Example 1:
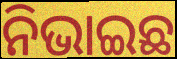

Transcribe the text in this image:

ନିଭାଇଛ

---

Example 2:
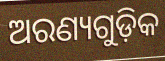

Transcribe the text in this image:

ଅରଣ୍ୟଗୁଡ଼ିକ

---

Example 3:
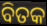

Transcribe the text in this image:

ବିତକ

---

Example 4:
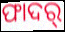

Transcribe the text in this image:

ଫାଦର୍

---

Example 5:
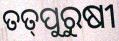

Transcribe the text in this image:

ତତ୍‌ପୁରୁଷୀ